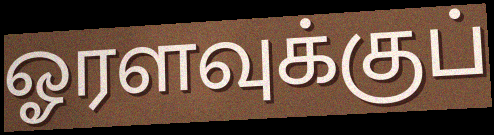
ஓரளவுக்குப்